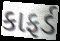
કાફર્ડ